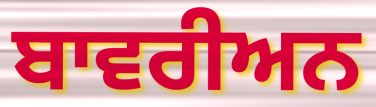
ਬਾਵਰੀਅਨ